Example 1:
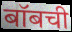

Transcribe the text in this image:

बॉबची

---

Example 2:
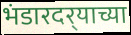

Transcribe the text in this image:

भंडारदर्‍याच्या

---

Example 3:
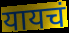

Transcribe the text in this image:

यायचं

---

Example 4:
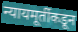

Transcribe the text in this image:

न्यायमूर्तीकडून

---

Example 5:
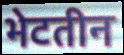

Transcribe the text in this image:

भेटतीन